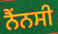
ਨੈਂਨਸੀ